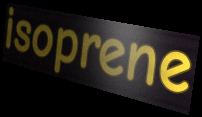
isoprene